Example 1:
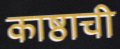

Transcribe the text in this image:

काष्ठाची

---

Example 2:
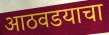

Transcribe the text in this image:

आठवडयाचा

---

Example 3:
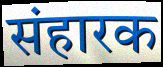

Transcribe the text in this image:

संहारक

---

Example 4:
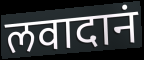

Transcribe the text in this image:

लवादानं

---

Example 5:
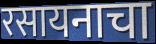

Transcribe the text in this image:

रसायनाचा